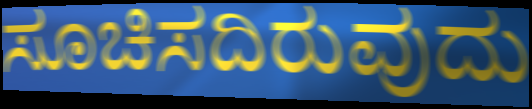
ಸೂಚಿಸದಿರುವುದು